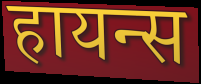
हायन्स